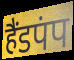
हैंडपंप